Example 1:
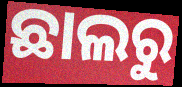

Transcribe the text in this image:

ଛାଲରୁ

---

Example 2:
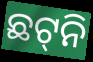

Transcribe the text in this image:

ଛଟ୍‌ନି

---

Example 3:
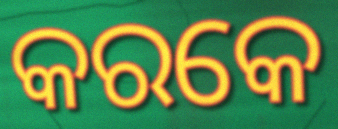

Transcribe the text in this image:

କରକେ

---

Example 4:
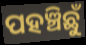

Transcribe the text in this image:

ପହଞ୍ଚିଛୁଁ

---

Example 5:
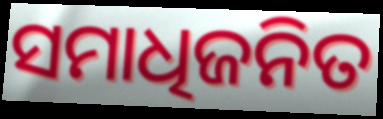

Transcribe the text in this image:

ସମାଧିଜନିତ